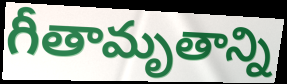
గీతామృతాన్ని